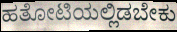
ಹತೋಟಿಯಲ್ಲಿಡಬೇಕು